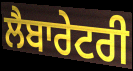
ਲੈਬਾਰੇਟਰੀ